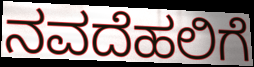
ನವದೆಹಲಿಗೆ